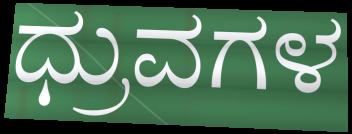
ಧ್ರುವಗಳ